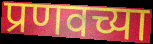
प्रणवच्या